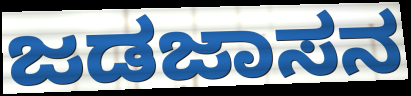
ಜಡಜಾಸನ